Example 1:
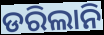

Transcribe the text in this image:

ଡରିଲାନି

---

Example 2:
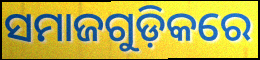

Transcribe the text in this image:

ସମାଜଗୁଡ଼ିକରେ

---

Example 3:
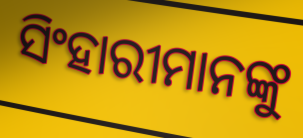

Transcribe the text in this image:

ସିଂହାରୀମାନଙ୍କୁ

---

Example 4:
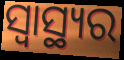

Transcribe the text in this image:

ସ୍ବାସ୍ଥ୍ୟର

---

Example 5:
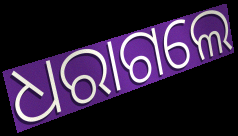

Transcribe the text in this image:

ଧରାଗଲେ